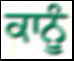
ਕਾਨੂੰ